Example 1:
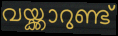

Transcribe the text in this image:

വയ്ക്കാറുണ്ട്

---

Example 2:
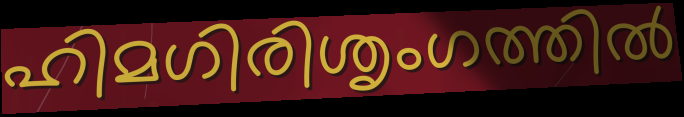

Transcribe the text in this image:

ഹിമഗിരിശൃംഗത്തിൽ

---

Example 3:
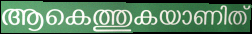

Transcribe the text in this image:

ആകെത്തുകയാണിത്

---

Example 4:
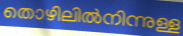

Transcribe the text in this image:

തൊഴിലിൽനിന്നുള്ള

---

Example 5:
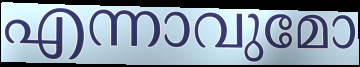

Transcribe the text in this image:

എന്നാവുമോ